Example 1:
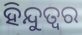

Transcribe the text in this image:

ହିନ୍ଦୁତ୍ବର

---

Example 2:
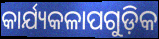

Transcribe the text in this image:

କାର୍ଯ୍ୟକଳାପଗୁଡ଼ିକ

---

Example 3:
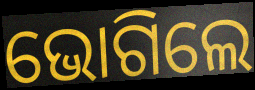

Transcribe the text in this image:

ଭୋଗିଲେ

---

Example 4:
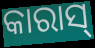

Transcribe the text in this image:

କାରାସ୍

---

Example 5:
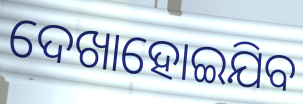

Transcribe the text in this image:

ଦେଖାହୋଇଯିବ